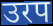
उरप